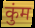
कुंम